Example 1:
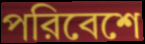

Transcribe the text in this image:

পরিবেশে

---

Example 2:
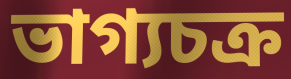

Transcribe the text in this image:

ভাগ্যচক্র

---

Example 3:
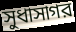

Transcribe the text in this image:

সুধাসাগর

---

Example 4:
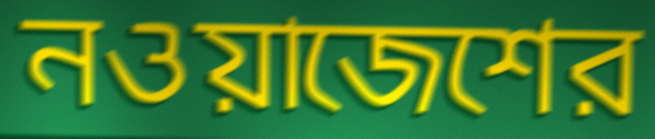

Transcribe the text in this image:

নওয়াজেশের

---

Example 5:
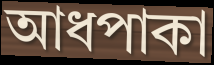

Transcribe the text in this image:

আধপাকা